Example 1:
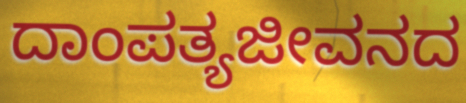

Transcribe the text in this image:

ದಾಂಪತ್ಯಜೀವನದ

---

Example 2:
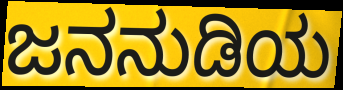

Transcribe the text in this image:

ಜನನುಡಿಯ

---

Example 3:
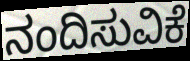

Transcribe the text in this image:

ನಂದಿಸುವಿಕೆ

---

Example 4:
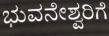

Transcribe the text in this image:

ಭುವನೇಶ್ವರಿಗೆ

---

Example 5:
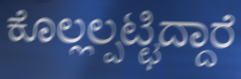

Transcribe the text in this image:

ಕೊಲ್ಲಲ್ಪಟ್ಟಿದ್ದಾರೆ